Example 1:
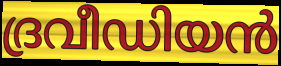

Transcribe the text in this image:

ദ്രവീഡിയൻ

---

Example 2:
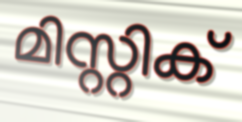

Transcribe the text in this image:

മിസ്റ്റിക്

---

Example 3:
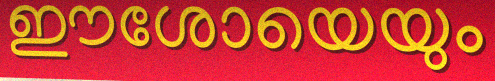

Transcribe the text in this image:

ഈശോയെയും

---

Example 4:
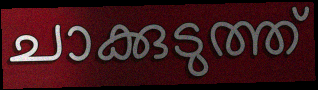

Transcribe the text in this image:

ചാക്കുടുത്ത്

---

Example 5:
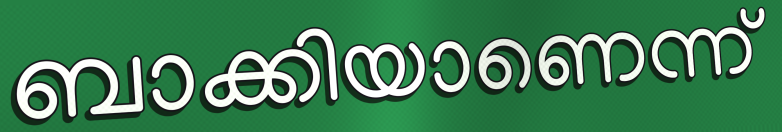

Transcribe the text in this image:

ബാക്കിയാണെന്ന്